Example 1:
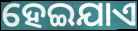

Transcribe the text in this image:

ହେଇଯାଏ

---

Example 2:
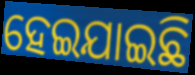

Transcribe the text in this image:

ହେଇଯାଇଛି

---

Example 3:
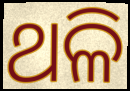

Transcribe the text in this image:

ଥଳି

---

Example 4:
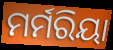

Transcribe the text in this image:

ମର୍ମରିୟା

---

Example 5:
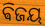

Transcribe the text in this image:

ଵିଜୟ